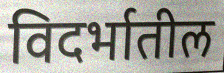
विदर्भातील